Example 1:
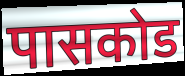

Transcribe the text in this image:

पासकोड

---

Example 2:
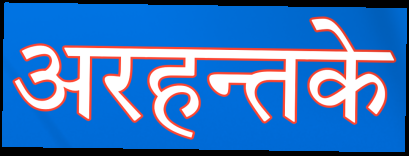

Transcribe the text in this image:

अरहन्तके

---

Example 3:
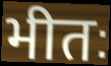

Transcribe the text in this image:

भीतः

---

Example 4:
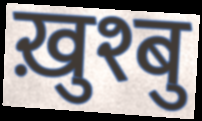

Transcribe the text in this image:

ख़ुश्बु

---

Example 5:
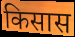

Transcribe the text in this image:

किसास